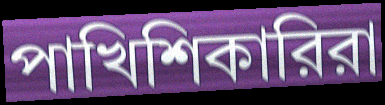
পাখিশিকারিরা